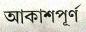
আকাশপূর্ণ